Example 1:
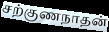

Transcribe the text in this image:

சற்குணநாதன்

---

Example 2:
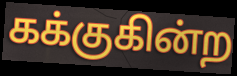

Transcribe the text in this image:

கக்குகின்ற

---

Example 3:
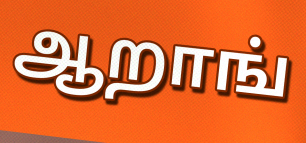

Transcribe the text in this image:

ஆறாங்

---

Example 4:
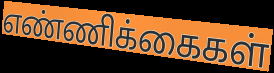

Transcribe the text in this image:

எண்ணிக்கைகள்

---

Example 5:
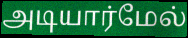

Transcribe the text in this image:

அடியார்மேல்